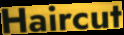
Haircut